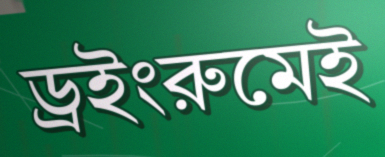
ড্রইংরুমেই